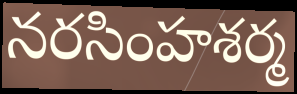
నరసింహశర్మ